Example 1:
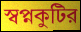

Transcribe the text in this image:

স্বপ্নকুটির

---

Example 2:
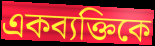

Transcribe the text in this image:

একব্যক্তিকে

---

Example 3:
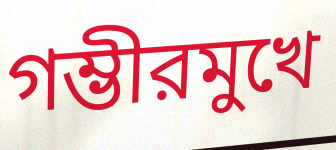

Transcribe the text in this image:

গম্ভীরমুখে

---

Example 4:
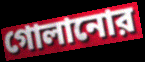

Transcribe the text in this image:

গোলানোর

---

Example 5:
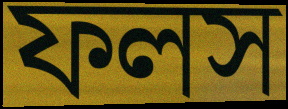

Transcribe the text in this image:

ফলস